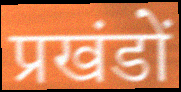
प्रखंडों